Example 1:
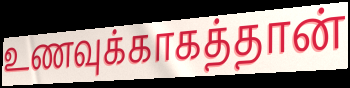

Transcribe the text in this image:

உணவுக்காகத்தான்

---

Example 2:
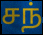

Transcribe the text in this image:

சந்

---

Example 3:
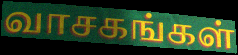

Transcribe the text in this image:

வாசகங்கள்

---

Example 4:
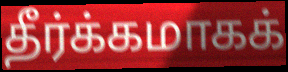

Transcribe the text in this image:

தீர்க்கமாகக்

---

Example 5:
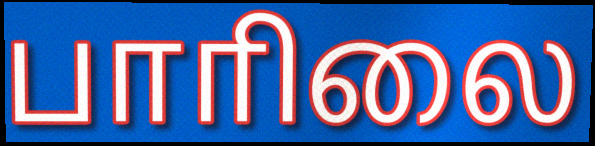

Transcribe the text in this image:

பாரிலை